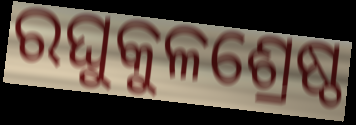
ରଘୁକୁଳଶ୍ରେଷ୍ଠ